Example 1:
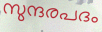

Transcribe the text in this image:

സുന്ദരപദം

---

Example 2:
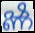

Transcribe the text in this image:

ഷ്ണ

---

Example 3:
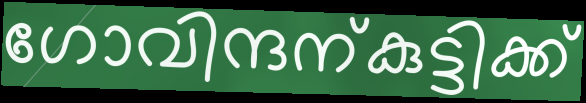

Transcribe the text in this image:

ഗോവിന്ദന്കുട്ടിക്ക്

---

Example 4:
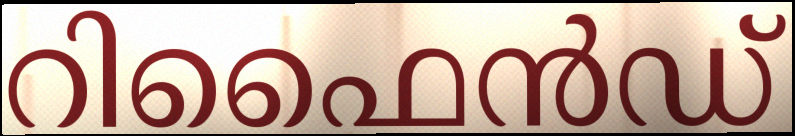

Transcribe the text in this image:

റിഫൈൻഡ്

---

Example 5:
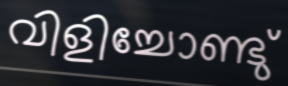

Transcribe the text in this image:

വിളിച്ചോണ്ടു്